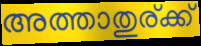
അത്താതുര്ക്ക്